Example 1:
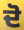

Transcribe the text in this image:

ਦੋ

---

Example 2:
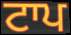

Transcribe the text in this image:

ਟਾਪ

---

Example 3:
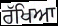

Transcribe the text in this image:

ਰੱਖਿਆ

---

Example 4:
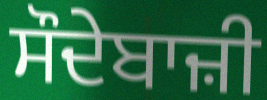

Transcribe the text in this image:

ਸੌਦੇਬਾਜ਼ੀ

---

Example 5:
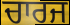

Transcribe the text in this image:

ਚਾਰਜ